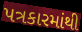
પત્રકારમાંથી